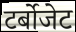
टर्बोजेट